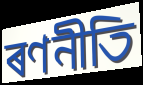
ৰণনীতি